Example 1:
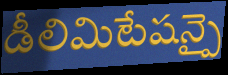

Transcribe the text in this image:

డీలిమిటేషన్పై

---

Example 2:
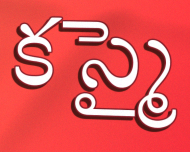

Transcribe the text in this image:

కస్మై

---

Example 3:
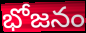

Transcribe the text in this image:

భోజనం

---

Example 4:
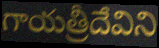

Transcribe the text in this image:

గాయత్రీదేవిని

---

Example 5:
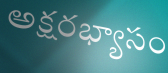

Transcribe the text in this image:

అక్షరభ్యాసం